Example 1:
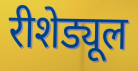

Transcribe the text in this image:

रीशेड्यूल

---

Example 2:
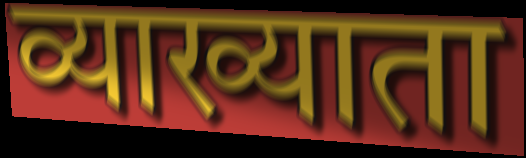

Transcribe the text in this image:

व्‍याख्‍याता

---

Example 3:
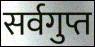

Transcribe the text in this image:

सर्वगुप्त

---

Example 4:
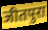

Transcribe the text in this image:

जीतपुरा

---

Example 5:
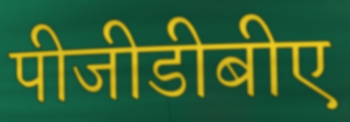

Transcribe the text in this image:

पीजीडीबीए